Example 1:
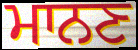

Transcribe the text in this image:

ਮਾਨਣ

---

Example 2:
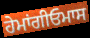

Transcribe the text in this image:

ਹੇਮਾਂਗੀਓਮਾਸ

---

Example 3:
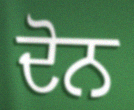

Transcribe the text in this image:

ਦੋਨ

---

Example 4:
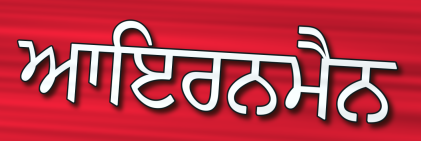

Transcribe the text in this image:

ਆਇਰਨਮੈਨ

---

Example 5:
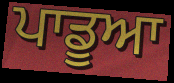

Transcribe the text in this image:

ਪਾਡੂਆ